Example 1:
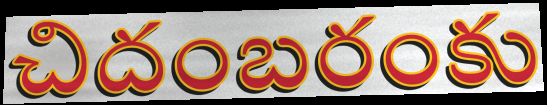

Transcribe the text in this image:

చిదంబరంకు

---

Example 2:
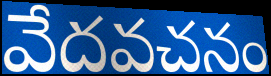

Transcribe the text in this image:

వేదవచనం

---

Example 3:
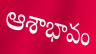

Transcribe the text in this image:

ఆశాభావం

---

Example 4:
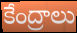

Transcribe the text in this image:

కేంద్రాలు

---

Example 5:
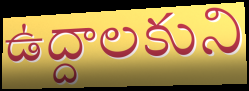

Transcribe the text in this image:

ఉద్దాలకుని